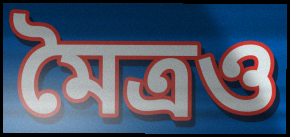
মৈত্রও